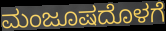
ಮಂಜೂಷದೊಳಗೆ